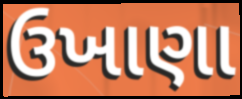
ઉખાણા